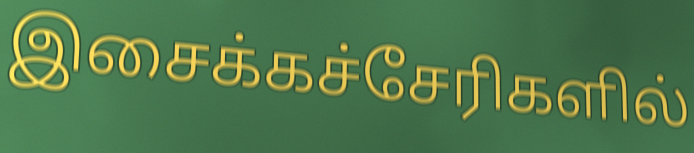
இசைக்கச்சேரிகளில்